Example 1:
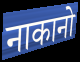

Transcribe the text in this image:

नाकानो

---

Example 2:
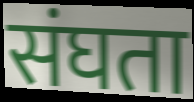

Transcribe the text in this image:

संघता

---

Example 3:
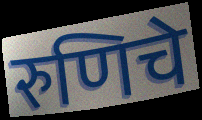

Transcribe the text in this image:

रुणिचे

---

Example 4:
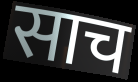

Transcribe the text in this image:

साच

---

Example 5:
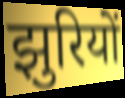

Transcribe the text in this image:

झुरियों